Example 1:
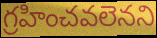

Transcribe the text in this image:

గ్రహించవలెనని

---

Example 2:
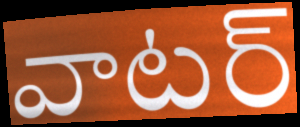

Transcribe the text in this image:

వాటర్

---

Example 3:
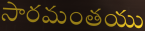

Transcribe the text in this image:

సారమంతయు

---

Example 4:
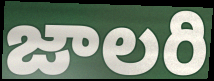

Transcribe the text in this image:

జాలరి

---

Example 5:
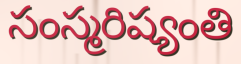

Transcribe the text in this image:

సంస్మరిష్యంతి